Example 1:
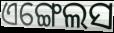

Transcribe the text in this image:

ଏଙ୍ଗେଲସ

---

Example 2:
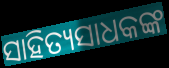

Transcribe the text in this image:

ସାହିତ୍ୟସାଧକଙ୍କ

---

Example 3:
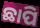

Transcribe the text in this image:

ଛାପି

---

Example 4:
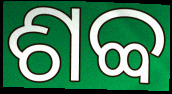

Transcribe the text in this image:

ଶବ୍ବ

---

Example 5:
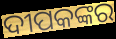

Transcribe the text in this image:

ଦୀପକଙ୍କର